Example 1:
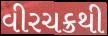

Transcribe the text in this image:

વીરચક્રથી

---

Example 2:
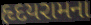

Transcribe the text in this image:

હૃદયરામના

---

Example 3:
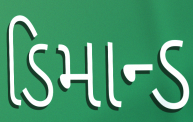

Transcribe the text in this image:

ડિમાન્ડ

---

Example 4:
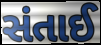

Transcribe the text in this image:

સંતાઈ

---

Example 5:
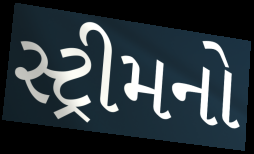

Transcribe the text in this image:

સ્ટ્રીમનો